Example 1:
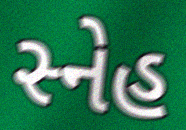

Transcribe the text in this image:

સ્નેહ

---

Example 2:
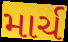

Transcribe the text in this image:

માર્ચ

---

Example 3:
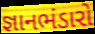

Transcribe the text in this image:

જ્ઞાનભંડારો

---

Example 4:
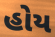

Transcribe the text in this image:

હોય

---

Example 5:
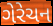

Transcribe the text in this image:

ગેરેચન